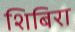
शिबिरा